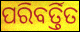
ପରିବର୍ତ୍ତିତ